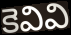
కెవివి